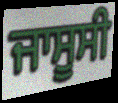
ਜਾਸੂਸੀ